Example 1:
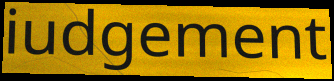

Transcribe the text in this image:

iudgement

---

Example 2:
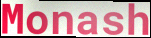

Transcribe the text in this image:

Monash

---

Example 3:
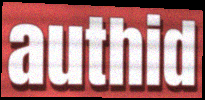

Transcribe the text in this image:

authid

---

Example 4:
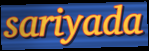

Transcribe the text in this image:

sariyada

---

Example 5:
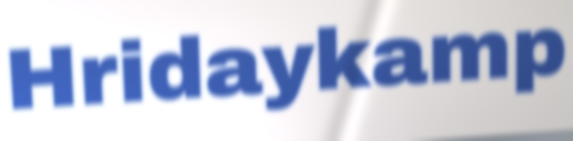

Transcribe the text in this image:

Hridaykamp